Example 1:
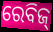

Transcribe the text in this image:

ରେବିଜ୍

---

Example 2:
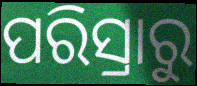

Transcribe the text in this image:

ପରିସ୍ରାରୁ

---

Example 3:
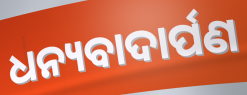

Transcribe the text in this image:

ଧନ୍ୟବାଦାର୍ପଣ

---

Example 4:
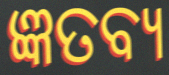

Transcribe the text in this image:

ଜ୍ଞତବ୍ୟ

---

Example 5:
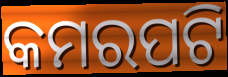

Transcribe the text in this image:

କମରପଟି